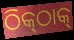
ଠିକ୍‌ଠାକ୍